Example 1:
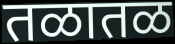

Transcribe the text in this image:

तळातळ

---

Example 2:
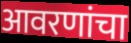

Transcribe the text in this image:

आवरणांचा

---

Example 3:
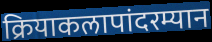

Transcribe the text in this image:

क्रियाकलापांदरम्यान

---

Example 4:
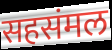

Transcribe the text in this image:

सहसंमल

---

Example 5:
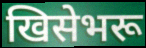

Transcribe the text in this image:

खिसेभरू